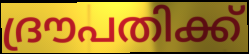
ദ്രൗപതിക്ക്